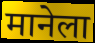
मानेला